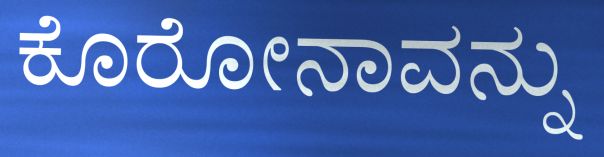
ಕೊರೋನಾವನ್ನು